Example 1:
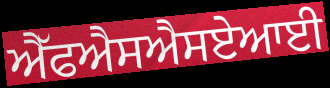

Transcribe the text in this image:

ਐੱਫਐਸਐਸਏਆਈ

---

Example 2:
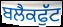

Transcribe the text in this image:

ਬਲੈਕਫੁੱਟ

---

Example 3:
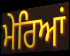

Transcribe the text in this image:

ਮੇਰਿਆਂ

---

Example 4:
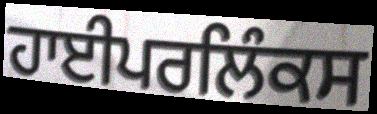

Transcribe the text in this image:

ਹਾਈਪਰਲਿੰਕਸ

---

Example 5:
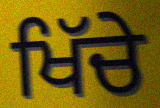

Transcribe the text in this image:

ਖਿੱਚੇ